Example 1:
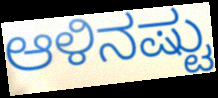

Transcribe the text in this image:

ಆಳಿನಷ್ಟು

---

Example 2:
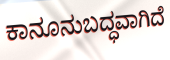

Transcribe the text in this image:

ಕಾನೂನುಬದ್ಧವಾಗಿದೆ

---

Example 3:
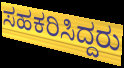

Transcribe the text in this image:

ಸಹಕರಿಸಿದ್ದರು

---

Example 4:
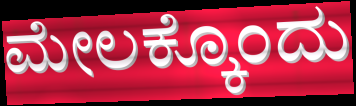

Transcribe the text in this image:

ಮೇಲಕ್ಕೊಂದು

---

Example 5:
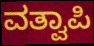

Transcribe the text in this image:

ವತ್ವಾಪಿ